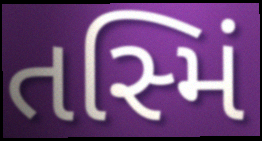
તસ્મિં